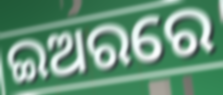
ଇଅରରେ